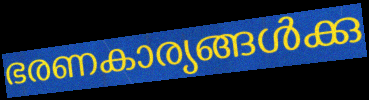
ഭരണകാര്യങ്ങൾക്കു